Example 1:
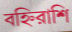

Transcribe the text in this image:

বহ্নিরাশি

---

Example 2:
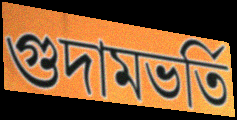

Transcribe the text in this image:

গুদামভর্তি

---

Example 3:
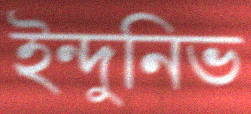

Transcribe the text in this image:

ইন্দুনিভ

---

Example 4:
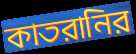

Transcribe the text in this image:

কাতরানির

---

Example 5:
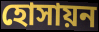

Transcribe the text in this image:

হোসায়ন